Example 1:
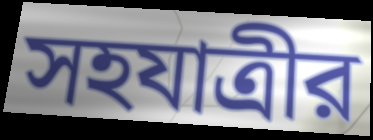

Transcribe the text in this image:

সহযাত্রীর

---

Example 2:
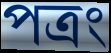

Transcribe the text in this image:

পত্রং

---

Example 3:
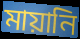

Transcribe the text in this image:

মায়ানি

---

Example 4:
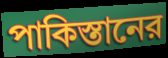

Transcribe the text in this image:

পাকিস্তানের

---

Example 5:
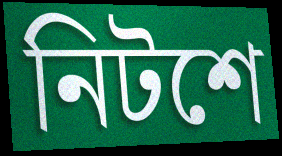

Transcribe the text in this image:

নিটশে